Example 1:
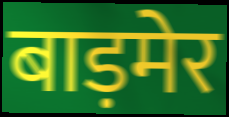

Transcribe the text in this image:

बाड़मेर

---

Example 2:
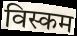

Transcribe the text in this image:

विस्कम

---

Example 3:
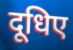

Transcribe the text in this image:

दूधिए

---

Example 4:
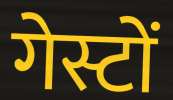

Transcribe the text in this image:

गेस्टों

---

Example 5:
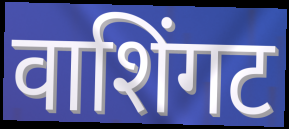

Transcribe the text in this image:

वाशिंगट